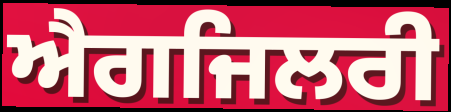
ਐਗਜਿਲਰੀ